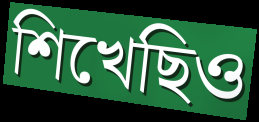
শিখেছিও